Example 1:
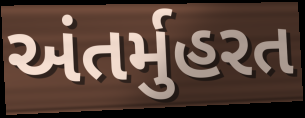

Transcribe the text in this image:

અંતર્મુહરત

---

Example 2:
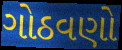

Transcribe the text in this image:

ગોઠવણો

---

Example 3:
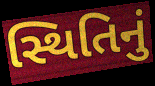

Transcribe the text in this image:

સ્થિતિનું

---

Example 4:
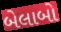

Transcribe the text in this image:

બેલાબો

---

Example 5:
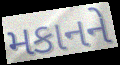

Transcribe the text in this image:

મકાનને